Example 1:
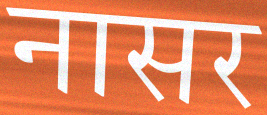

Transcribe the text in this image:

नासर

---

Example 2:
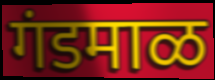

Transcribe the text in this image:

गंडमाळ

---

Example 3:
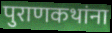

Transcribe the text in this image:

पुराणकथांना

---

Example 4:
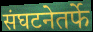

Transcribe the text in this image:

संघटनेतर्फे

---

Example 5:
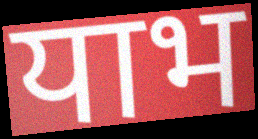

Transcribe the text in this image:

याभ